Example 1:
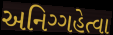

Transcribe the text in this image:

અનિગ્ગહેત્વા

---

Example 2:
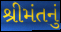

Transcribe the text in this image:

શ્રીમંતનું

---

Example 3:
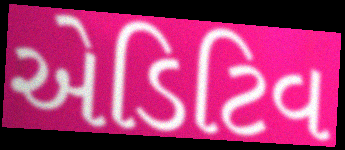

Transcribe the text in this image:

એડિટિવ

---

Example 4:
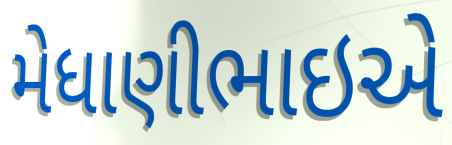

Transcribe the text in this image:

મેધાણીભાઇએ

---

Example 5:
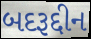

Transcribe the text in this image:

બદરૂદ્દીન